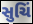
સુચિં